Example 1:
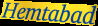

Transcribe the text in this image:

Hemtabad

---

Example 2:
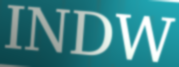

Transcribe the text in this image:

INDW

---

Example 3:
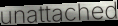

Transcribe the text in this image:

unattached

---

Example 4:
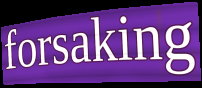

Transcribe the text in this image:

forsaking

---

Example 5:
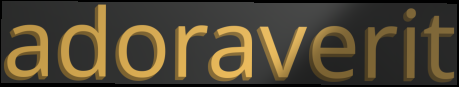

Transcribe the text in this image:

adoraverit